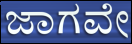
ಜಾಗವೇ